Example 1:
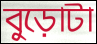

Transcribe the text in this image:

বুড়োটা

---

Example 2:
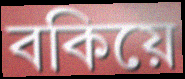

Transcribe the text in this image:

বকিয়ে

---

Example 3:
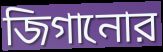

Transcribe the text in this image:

জিগানোর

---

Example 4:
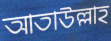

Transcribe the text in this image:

আতাউল্লাহ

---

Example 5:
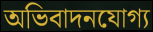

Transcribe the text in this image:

অভিবাদনযোগ্য